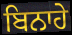
ਬਿਨਾਹੇ